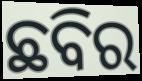
ଛବିର